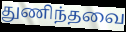
துணிந்தவை